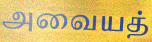
அவையத்